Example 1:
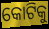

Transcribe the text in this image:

କୋଟିକୁ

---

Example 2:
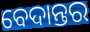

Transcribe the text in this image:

ବେଦାନ୍ତର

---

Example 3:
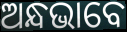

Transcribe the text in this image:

ଅନ୍ଧଭାବେ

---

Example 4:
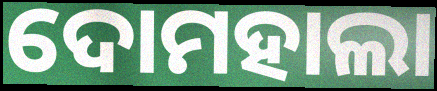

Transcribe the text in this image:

ଦୋମହାଲା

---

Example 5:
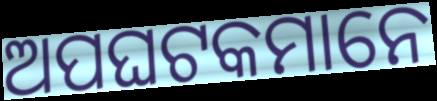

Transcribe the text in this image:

ଅପଘଟକମାନେ